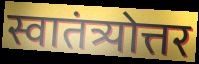
स्वातंत्र्योत्तर